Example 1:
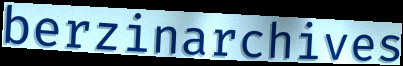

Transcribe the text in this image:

berzinarchives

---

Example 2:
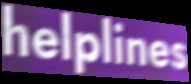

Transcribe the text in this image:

helplines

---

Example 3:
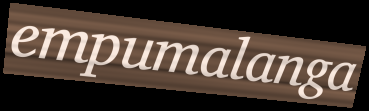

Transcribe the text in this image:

empumalanga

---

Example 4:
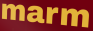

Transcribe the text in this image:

marm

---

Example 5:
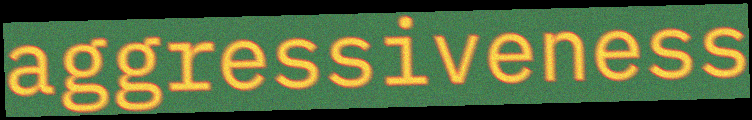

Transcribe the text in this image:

aggressiveness